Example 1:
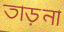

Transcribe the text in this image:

তাড়না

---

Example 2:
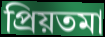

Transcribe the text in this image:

প্রিয়তমা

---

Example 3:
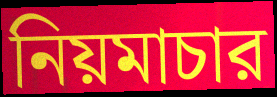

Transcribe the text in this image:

নিয়মাচার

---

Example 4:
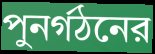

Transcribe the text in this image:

পুনর্গঠনের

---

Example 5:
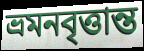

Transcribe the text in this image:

ভ্রমনবৃত্তান্ত